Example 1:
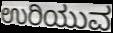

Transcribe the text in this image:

ಉರಿಯುವ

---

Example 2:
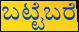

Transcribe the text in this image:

ಬಟ್ಟೆಬರೆ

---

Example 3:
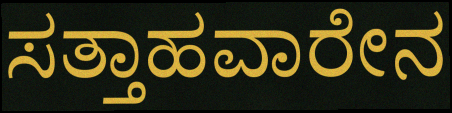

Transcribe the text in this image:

ಸತ್ತಾಹವಾರೇನ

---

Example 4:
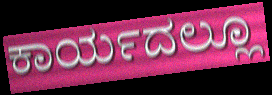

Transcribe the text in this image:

ಕಾರ್ಯದಲ್ಲೂ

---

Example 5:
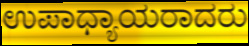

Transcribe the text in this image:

ಉಪಾಧ್ಯಾಯರಾದರು